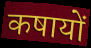
कषायों